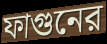
ফাগুনের